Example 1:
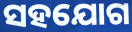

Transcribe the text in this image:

ସହଯୋଗ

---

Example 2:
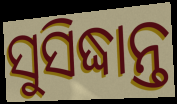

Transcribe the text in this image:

ସୁସିଦ୍ଧାନ୍ତ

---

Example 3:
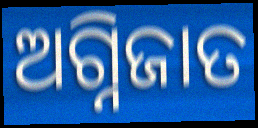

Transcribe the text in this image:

ଅଗ୍ନିଜାତ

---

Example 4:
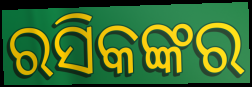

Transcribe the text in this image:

ରସିକଙ୍କର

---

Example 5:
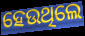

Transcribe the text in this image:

ହେଉଥିଲେ